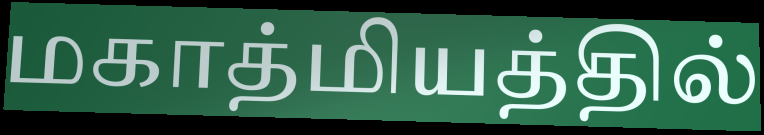
மகாத்மியத்தில்